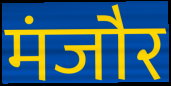
मंजौर